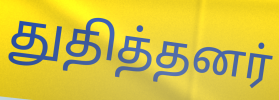
துதித்தனர்